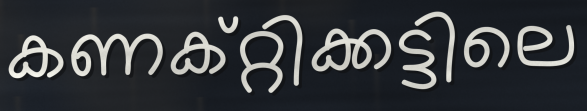
കണക്റ്റിക്കട്ടിലെ